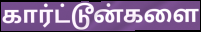
கார்ட்டூன்களை